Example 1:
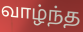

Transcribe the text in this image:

வாழ்ந்த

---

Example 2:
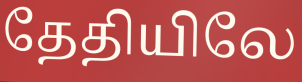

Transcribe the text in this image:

தேதியிலே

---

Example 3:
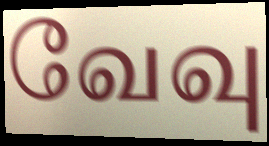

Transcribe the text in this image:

வேவு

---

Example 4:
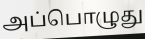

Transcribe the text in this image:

அப்பொழுது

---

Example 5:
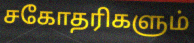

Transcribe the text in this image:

சகோதரிகளும்